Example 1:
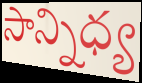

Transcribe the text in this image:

సాన్నిధ్య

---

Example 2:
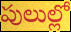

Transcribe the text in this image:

పులుల్లో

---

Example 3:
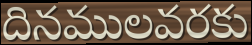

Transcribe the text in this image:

దినములవరకు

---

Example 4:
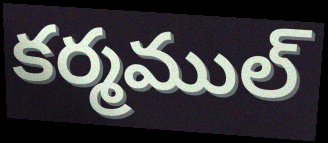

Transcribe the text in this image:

కర్మముల్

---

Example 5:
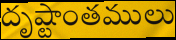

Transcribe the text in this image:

దృష్టాంతములు